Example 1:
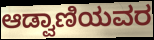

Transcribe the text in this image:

ಆಡ್ವಾಣಿಯವರ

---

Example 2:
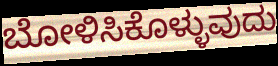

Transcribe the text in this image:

ಬೋಳಿಸಿಕೊಳ್ಳುವುದು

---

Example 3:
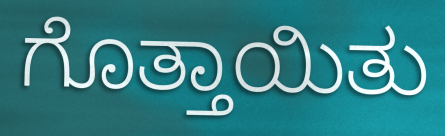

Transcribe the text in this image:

ಗೊತ್ತಾಯಿತು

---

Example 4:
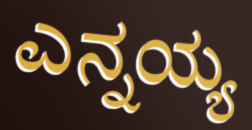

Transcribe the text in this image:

ಎನ್ನಯ್ಯ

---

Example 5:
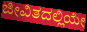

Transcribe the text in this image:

ಜೀವಿತದಲ್ಲಿಯೇ